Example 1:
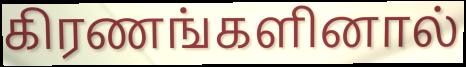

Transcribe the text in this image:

கிரணங்களினால்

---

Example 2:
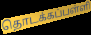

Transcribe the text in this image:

தொடக்கப்பள்ளி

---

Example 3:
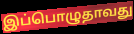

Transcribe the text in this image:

இப்பொழுதாவது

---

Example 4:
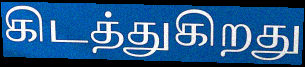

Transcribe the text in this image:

கிடத்துகிறது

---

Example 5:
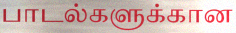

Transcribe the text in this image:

பாடல்களுக்கான